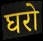
घरो